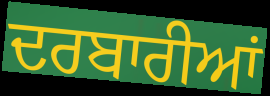
ਦਰਬਾਰੀਆਂ